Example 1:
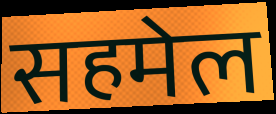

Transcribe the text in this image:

सहमेल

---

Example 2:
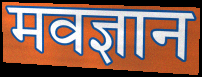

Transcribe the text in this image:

मवज्ञान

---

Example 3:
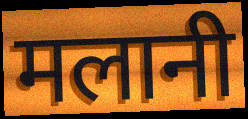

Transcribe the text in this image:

मलानी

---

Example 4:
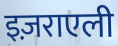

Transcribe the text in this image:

इज़राएली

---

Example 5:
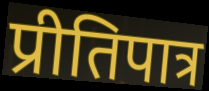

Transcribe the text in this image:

प्रीतिपात्र